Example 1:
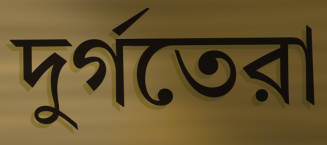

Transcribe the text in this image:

দুর্গতেরা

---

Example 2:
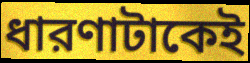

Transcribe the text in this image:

ধারণাটাকেই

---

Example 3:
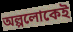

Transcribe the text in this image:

অল্পলোকেই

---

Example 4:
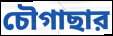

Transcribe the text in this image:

চৌগাছার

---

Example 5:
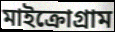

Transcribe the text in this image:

মাইক্রোগ্রাম